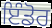
ਇੰਡੋਰ